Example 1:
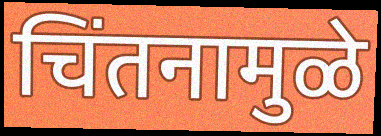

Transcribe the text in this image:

चिंतनामुळे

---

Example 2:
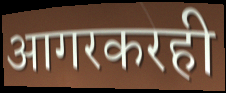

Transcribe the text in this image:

आगरकरही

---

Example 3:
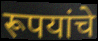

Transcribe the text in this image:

रूपयांचे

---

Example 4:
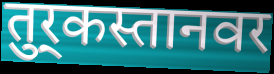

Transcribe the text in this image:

तुर्कस्तानवर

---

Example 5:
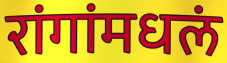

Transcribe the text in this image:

रांगांमधलं